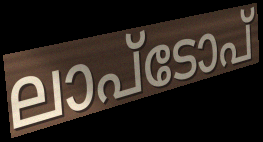
ലാപ്ടോപ്